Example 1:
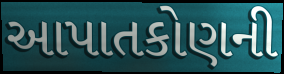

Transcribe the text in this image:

આપાતકોણની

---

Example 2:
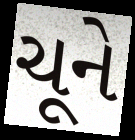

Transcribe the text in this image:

ચૂને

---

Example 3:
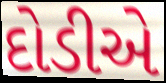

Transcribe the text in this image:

દોડીએ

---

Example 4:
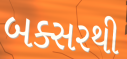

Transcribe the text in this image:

બક્સરથી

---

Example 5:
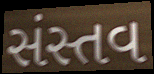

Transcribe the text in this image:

સંસ્તવ